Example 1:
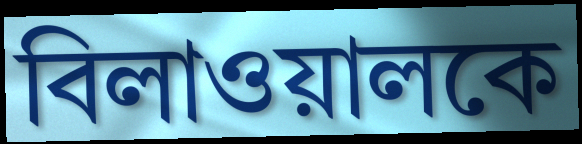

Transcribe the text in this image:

বিলাওয়ালকে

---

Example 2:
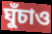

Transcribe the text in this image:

ঘুঁচাও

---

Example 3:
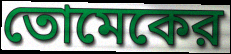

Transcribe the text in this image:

তোমেকের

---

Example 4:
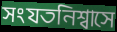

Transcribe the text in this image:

সংযতনিশ্বাসে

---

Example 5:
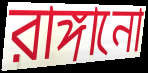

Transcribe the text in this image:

রাঙ্গানো